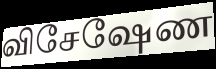
விசேஷேண